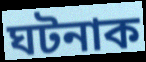
ঘটনাক